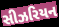
સીઝરિયન